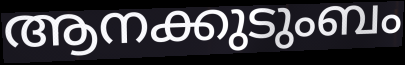
ആനക്കുടുംബം